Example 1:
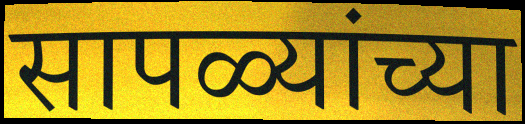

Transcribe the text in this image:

सापळ्यांच्या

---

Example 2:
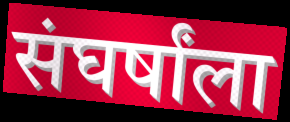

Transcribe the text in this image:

संघर्षांला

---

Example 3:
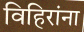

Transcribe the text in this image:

विहिरांना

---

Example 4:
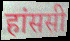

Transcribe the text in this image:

हांससी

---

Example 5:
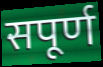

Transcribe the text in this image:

सपूर्ण